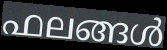
ഫലങ്ങൾ